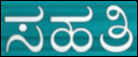
ಸಹತಿ